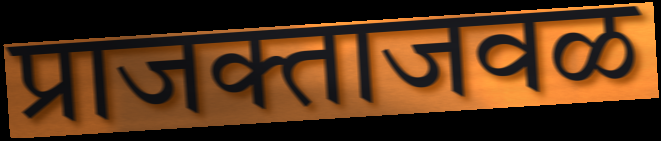
प्राजक्ताजवळ